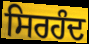
ਸਿਰਹੰਦ